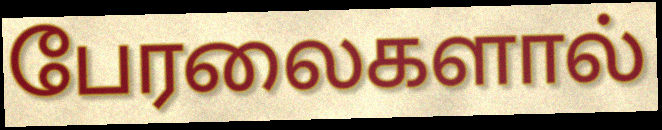
பேரலைகளால்